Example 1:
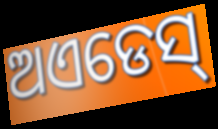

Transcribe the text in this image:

ଅଏଡେସ୍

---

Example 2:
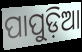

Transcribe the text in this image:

ପାପୁଡ଼ିଆ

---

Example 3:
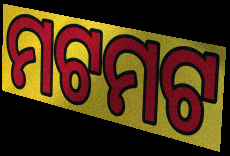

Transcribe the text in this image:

ମଟମଟ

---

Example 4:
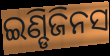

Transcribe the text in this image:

ଇଣ୍ଡିଜିନସ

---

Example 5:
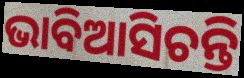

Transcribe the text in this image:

ଭାବିଆସିଚନ୍ତି